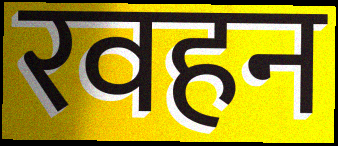
रवहन